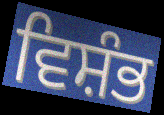
ਵਿਸ਼ੰਭ